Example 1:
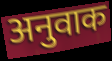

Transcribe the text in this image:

अनुवाक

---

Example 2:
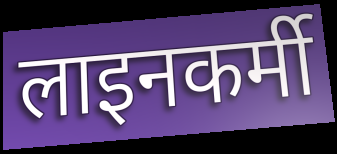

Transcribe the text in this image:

लाइनकर्मी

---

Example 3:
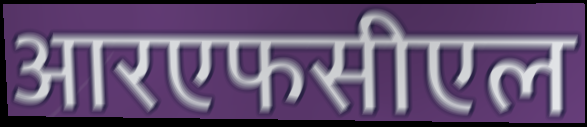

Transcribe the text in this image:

आरएफसीएल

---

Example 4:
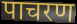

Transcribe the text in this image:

पाचरण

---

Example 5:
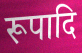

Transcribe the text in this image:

रूपादि